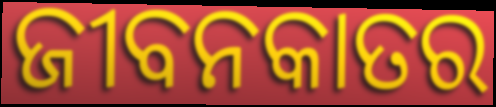
ଜୀବନକାତର